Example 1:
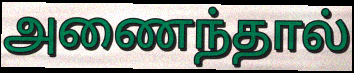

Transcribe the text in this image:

அணைந்தால்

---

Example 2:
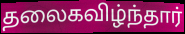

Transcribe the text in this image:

தலைகவிழ்ந்தார்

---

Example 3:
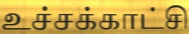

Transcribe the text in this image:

உச்சக்காட்சி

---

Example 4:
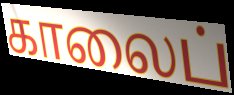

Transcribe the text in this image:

காலைப்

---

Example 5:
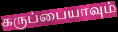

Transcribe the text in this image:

கருப்பையாவும்